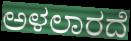
ಅಳಲಾರದೆ